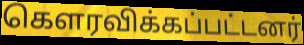
கௌரவிக்கப்பட்டனர்